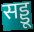
सड्डू